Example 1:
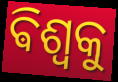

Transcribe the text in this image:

ଵିଶ୍ଵକୁ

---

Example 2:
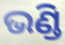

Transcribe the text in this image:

ଭଣ୍ଡି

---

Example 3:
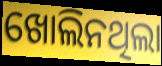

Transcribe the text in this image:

ଖୋଲିନଥିଲା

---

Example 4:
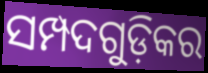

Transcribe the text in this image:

ସମ୍ପଦଗୁଡ଼ିକର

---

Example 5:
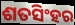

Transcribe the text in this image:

ଶତସିଂହର